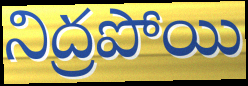
నిద్రపోయి